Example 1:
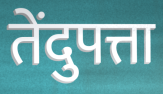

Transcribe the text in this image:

तेंदुपत्ता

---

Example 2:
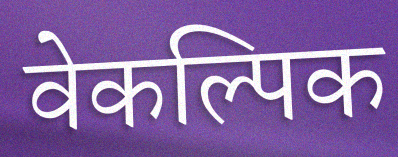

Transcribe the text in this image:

वेकल्पिक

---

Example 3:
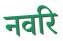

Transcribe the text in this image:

नवरि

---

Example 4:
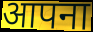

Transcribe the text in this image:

आपना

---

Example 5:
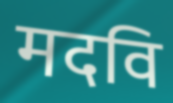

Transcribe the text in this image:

मदवि